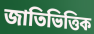
জাতিভিত্তিক